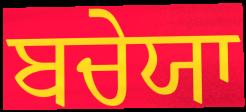
ਬਚੇਯਾ